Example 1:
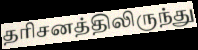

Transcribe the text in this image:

தரிசனத்திலிருந்து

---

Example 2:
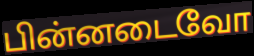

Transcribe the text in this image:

பின்னடைவோ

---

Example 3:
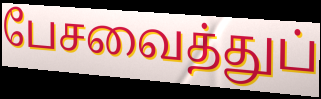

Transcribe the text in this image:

பேசவைத்துப்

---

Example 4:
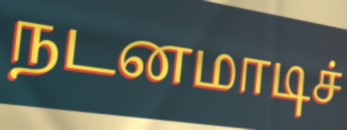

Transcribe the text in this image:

நடனமாடிச்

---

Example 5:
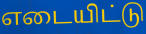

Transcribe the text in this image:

எடையிட்டு